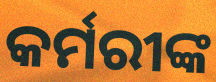
କର୍ମରୀଙ୍କ